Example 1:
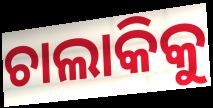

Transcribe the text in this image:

ଚାଲାକିକୁ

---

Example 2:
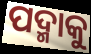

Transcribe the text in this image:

ପଦ୍ମାକୁ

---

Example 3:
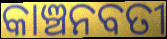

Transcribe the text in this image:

କାଞ୍ଚନବତୀ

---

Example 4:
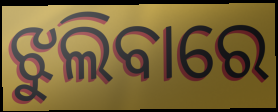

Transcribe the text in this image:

ଝୁଲିବାରେ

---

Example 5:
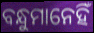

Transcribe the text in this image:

ବନ୍ଧୁମାନେହିଁ